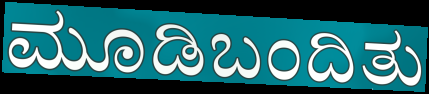
ಮೂಡಿಬಂದಿತು